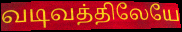
வடிவத்திலேயே